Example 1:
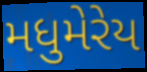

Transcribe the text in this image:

મધુમેરેય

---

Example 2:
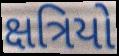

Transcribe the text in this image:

ક્ષત્રિયો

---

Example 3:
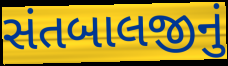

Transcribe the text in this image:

સંતબાલજીનું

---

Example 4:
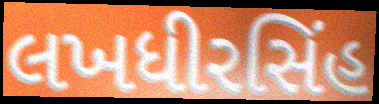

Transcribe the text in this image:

લખધીરસિંહ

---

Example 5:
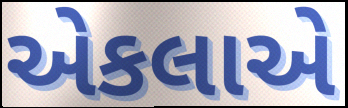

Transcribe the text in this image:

એકલાએ